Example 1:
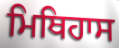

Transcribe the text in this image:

ਮਿਥਿਹਾਸ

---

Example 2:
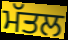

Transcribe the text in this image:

ਮੱਤਲ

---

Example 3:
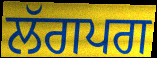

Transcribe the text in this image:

ਲੱਗਪਗ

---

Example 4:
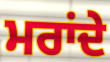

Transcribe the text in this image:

ਮਰਾਂਦੇ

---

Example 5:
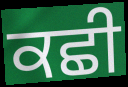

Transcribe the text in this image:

ਕਛੀ